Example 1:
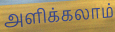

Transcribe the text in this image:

அளிக்கலாம்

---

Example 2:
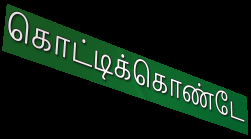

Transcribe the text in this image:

கொட்டிக்கொண்டே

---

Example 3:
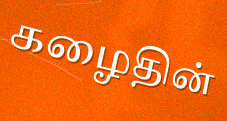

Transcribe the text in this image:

கழைதின்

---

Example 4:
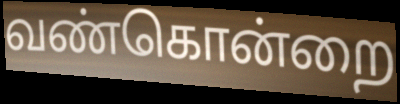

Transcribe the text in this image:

வண்கொன்றை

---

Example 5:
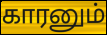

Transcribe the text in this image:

காரனும்